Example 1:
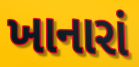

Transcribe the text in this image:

ખાનારાં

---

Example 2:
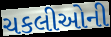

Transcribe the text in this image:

ચકલીઓની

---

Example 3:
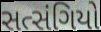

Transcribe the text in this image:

સત્સંગિયો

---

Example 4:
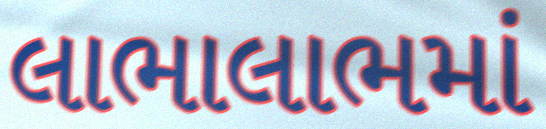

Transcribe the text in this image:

લાભાલાભમાં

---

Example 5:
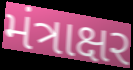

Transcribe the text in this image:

મંત્રાક્ષર